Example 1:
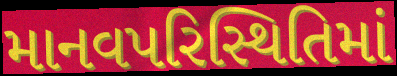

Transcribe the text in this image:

માનવપરિસ્થિતિમાં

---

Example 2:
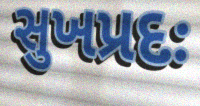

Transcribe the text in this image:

સુખપ્રદઃ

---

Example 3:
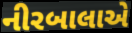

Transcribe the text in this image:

નીરબાલાએ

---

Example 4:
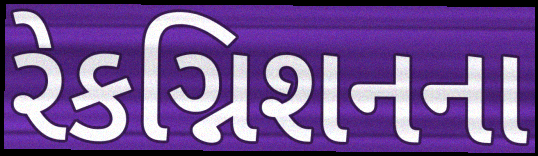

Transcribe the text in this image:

રેકગ્નિશનના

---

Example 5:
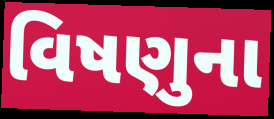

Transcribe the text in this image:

વિષણુના